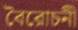
বৈরোচনী